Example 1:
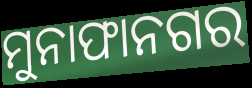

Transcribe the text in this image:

ମୁନାଫାନଗର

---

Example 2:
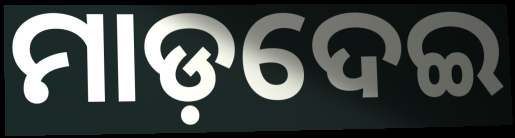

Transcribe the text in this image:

ମାଡ଼ଦେଇ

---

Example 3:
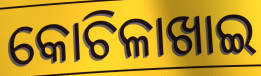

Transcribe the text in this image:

କୋଚିଳାଖାଇ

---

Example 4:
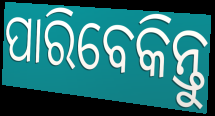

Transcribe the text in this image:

ପାରିବେକିନ୍ତୁ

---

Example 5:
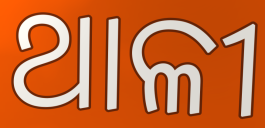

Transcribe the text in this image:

ଥାଳୀ